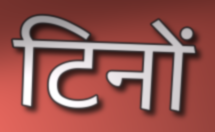
टिनों